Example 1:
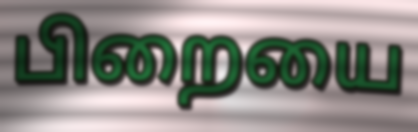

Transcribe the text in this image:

பிறையை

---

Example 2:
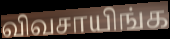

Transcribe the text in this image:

விவசாயிங்க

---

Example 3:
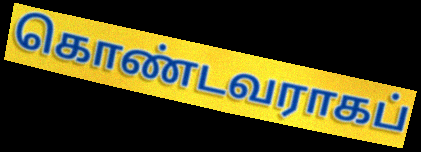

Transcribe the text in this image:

கொண்டவராகப்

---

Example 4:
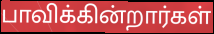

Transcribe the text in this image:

பாவிக்கின்றார்கள்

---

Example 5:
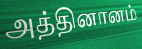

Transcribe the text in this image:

அத்தினானம்